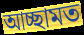
আচ্ছামত